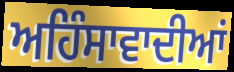
ਅਹਿੰਸਾਵਾਦੀਆਂ